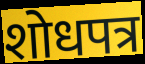
शोधपत्र